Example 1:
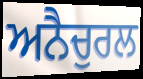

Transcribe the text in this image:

ਅਨੈਚੁਰਲ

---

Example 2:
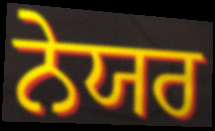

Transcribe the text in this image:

ਨੇਯਰ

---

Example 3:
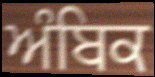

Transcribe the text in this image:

ਅੰਬਿਕ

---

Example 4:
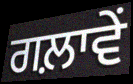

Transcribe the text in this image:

ਗਲ਼ਾਵੇਂ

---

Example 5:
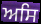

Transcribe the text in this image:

ਅਸਿ